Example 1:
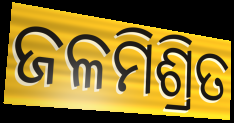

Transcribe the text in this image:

ଜଳମିଶ୍ରିତ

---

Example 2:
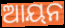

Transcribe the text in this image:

ଆୟନ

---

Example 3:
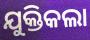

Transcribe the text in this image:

ଯୁକ୍ତିକଲା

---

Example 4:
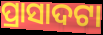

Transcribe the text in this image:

ପ୍ରାସାଦଟା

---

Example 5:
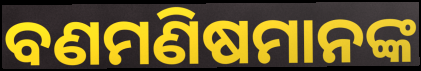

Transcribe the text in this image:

ବଣମଣିଷମାନଙ୍କ